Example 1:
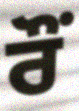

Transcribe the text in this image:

ਰੌਂ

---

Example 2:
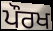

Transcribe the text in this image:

ਪੌਰਖ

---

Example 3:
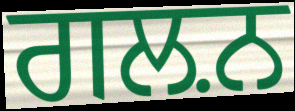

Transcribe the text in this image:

ਗਲ਼ਨ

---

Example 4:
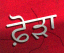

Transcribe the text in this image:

ਫ਼ੋੜਾ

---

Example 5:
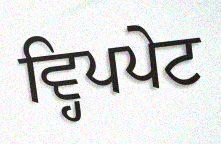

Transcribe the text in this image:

ਵ੍ਹਿਪਪੇਟ